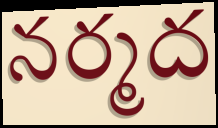
నర్మద